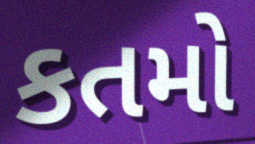
કતમો